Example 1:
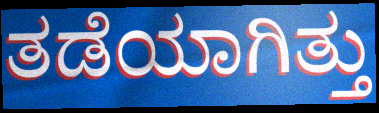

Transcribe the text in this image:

ತಡೆಯಾಗಿತ್ತು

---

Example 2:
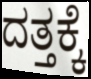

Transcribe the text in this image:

ದತ್ತಕ್ಕೆ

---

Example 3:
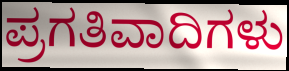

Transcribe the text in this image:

ಪ್ರಗತಿವಾದಿಗಳು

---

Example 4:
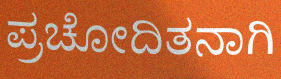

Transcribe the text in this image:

ಪ್ರಚೋದಿತನಾಗಿ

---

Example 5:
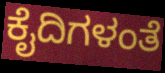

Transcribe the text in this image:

ಕೈದಿಗಳಂತೆ